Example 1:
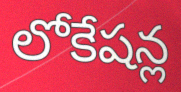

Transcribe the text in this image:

లోకేషన్ల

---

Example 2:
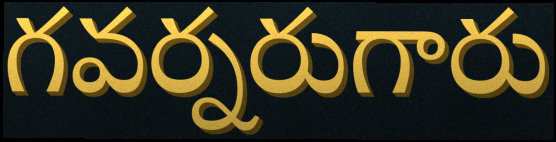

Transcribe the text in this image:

గవర్నరుగారు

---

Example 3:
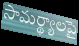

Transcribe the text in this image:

సామర్థ్యాలపై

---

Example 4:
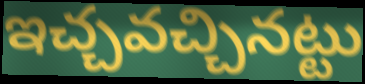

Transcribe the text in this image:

ఇచ్చవచ్చినట్టు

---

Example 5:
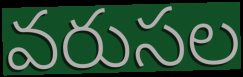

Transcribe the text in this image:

వరుసల